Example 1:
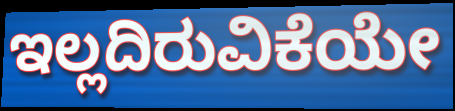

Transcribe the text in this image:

ಇಲ್ಲದಿರುವಿಕೆಯೇ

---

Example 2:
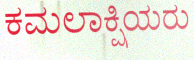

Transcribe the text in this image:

ಕಮಲಾಕ್ಷಿಯರು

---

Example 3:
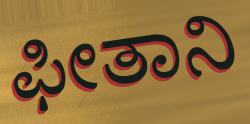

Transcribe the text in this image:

ಫೀತಾನಿ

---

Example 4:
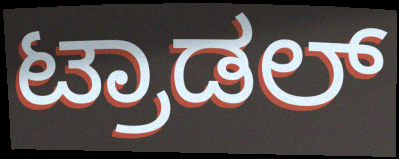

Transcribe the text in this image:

ಟ್ರಾಡಲ್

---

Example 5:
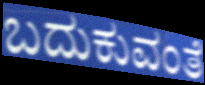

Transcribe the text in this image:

ಬದುಕುವಂತೆ